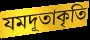
যমদূতাকৃতি